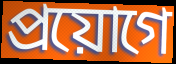
প্ৰয়োগে